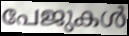
പേജുകൾ